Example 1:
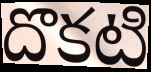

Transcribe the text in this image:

దొకటి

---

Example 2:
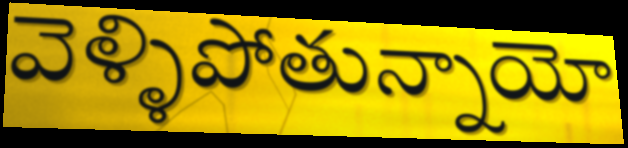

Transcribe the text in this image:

వెళ్ళిపోతున్నాయో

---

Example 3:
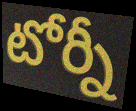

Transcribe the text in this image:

టోర్నీ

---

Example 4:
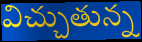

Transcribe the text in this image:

విచ్చుతున్న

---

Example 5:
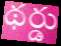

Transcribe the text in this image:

థర్డు